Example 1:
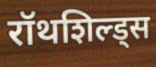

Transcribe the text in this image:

रॉथशिल्ड्स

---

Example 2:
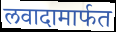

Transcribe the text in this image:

लवादामार्फत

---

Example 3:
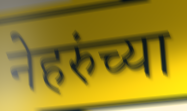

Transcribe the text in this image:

नेहरुंच्या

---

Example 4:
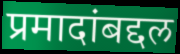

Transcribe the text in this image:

प्रमादांबद्दल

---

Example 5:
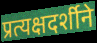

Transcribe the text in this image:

प्रत्यक्षदर्शीने